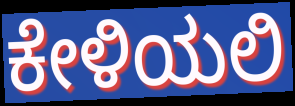
ಕೇಳಿಯಲಿ